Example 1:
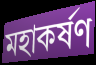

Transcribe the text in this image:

মহাকৰ্ষণ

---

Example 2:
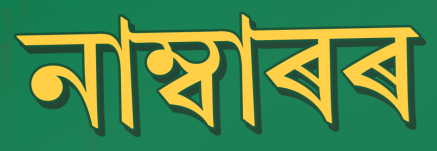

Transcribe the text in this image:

নাম্বাৰৰ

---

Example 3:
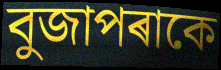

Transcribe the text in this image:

বুজাপৰাকে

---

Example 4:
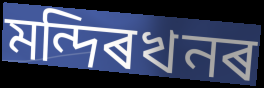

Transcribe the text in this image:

মন্দিৰখনৰ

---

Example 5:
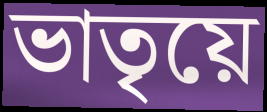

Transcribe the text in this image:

ভাতৃয়ে